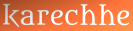
karechhe